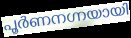
പൂർണനഗ്നയായി